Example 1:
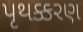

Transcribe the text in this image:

પૃથક્કરણ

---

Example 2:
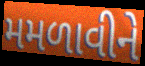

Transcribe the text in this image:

મમળાવીને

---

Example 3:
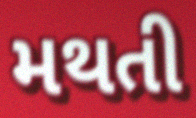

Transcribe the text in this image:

મથતી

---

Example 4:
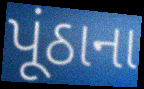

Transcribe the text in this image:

પૂંઠાના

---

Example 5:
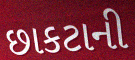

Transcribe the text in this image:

છાકટાની